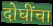
दोघींचा